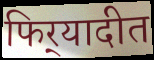
फिर्यादीत